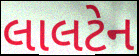
લાલટેન